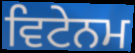
ਵਿਟੇਨਮ